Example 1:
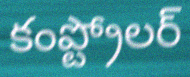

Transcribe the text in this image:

కంప్ట్రోలర్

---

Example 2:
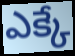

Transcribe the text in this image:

ఎక్కే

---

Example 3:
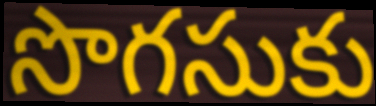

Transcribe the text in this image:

సొగసుకు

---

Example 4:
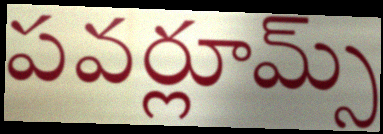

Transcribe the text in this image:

పవర్లూమ్స్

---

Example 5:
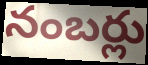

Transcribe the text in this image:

నంబర్లు